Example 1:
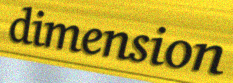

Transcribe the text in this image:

dimension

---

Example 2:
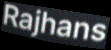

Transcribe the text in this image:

Rajhans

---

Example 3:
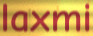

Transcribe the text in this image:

laxmi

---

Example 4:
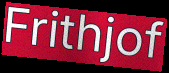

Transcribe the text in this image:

Frithjof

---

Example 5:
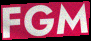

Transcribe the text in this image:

FGM